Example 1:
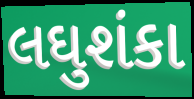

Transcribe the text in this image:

લઘુશંકા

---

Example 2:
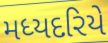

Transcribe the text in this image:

મધ્યદરિયે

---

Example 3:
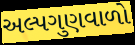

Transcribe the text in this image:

અલ્પગુણવાળો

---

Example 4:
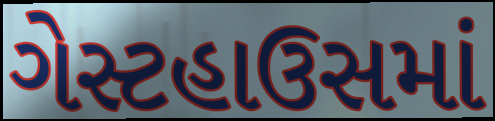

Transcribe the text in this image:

ગેસ્ટહાઉસમાં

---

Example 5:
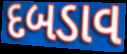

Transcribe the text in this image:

દબડાવ